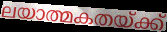
ലയാത്മകതയ്ക്ക്